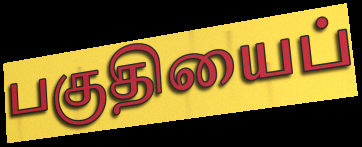
பகுதியைப்